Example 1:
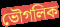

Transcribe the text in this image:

ভৌগলিক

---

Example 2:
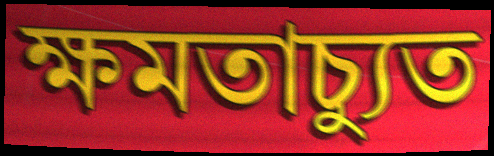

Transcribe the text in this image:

ক্ষমতাচ্যুত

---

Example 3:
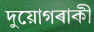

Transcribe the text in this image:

দুয়োগৰাকী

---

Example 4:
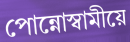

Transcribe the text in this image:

পোন্নোস্বামীয়ে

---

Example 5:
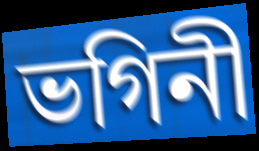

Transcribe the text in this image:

ভগিনী